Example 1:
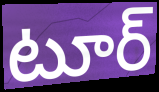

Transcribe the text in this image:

టూర్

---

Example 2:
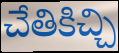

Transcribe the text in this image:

చేతికిచ్చి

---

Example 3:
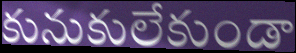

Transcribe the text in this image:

కునుకులేకుండా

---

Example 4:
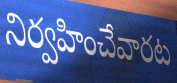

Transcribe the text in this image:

నిర్వహించేవారట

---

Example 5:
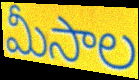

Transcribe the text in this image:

మీసాల